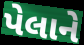
પેલાને